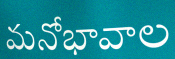
మనోభావాల